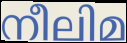
നീലിമ